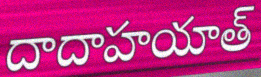
దాదాహయాత్